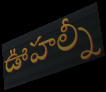
ఊహల్నీ